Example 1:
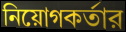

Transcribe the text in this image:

নিয়োগকর্তার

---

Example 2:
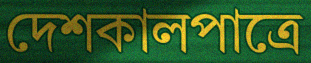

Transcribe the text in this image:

দেশকালপাত্রে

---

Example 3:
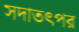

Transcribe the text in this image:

সদাতৎপর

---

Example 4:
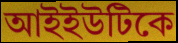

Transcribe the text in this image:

আইইউটিকে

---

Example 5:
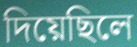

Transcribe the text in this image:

দিয়েছিলে